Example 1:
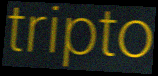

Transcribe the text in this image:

tripto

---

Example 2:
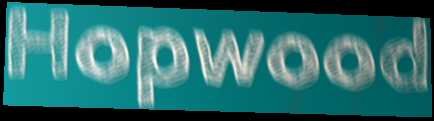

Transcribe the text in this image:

Hopwood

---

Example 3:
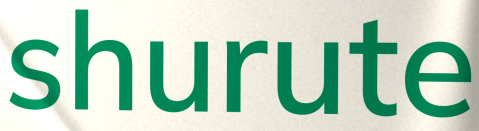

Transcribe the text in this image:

shurute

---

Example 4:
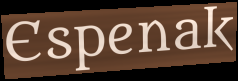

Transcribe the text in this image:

Espenak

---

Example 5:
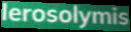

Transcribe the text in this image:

Ierosolymis